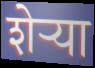
शेऱ्या